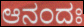
ಆನಂದಃ